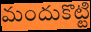
మందుకొట్టి